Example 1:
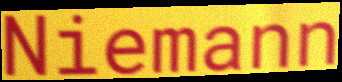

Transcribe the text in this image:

Niemann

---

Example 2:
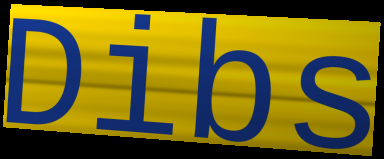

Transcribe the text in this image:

Dibs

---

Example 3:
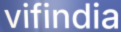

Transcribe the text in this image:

vifindia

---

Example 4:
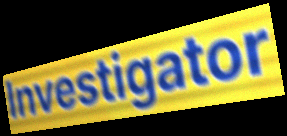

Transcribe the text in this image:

Investigator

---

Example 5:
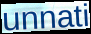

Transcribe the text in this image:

unnati